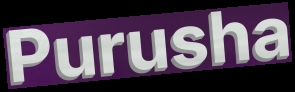
Purusha